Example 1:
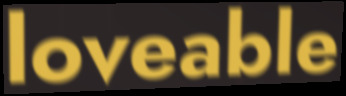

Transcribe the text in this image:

loveable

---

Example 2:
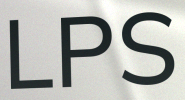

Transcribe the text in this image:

LPS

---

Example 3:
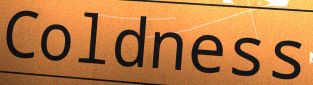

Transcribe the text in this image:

Coldness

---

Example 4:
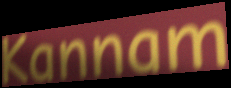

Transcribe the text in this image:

Kannam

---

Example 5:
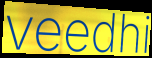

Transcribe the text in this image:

veedhi